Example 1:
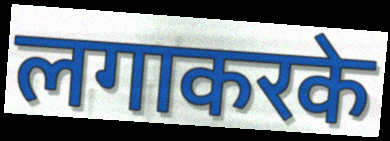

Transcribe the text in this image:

लगाकरके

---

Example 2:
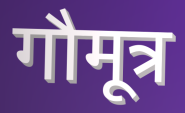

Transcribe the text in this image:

गौमूत्र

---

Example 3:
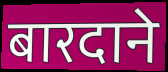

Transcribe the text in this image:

बारदाने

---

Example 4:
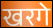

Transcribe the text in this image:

खरगे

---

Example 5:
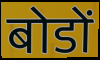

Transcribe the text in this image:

बोडों